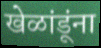
खेळांडूंना